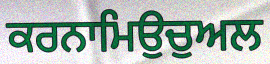
ਕਰਨਾਮਿਉਚੁਅਲ